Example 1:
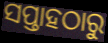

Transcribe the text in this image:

ସପ୍ତାହଠାରୁ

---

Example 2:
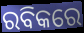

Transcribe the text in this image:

ରବିକରେ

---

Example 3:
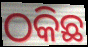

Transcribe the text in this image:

ଠକିଛ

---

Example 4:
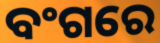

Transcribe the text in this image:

ବଂଗରେ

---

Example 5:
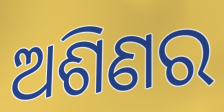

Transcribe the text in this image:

ଅଶିଣର